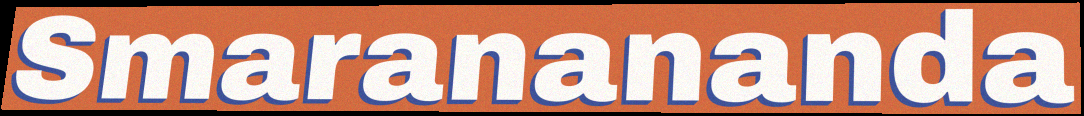
Smaranananda